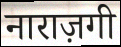
नाराज़गी